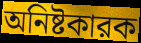
অনিষ্টকারক